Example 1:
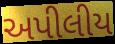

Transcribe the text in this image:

અપીલીય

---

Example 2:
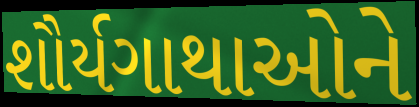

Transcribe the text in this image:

શૌર્યગાથાઓને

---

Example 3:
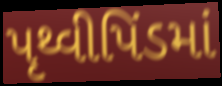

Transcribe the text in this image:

પૃથ્વીપિંડમાં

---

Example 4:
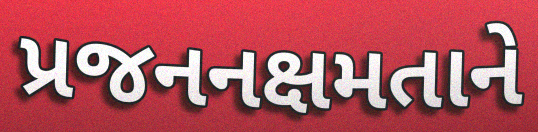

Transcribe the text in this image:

પ્રજનનક્ષમતાને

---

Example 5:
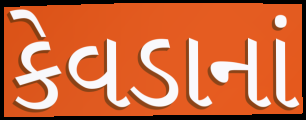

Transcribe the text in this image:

કેવડાનાં